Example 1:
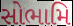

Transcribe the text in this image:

સોભામિ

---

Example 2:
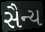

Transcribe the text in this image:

સૈન્ય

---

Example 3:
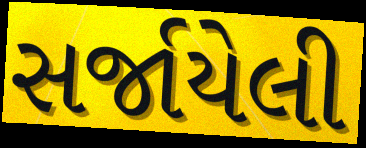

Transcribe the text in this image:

સર્જાયેલી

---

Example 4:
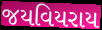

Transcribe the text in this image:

જયવિયરાય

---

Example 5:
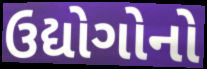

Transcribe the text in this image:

ઉદ્યોગોનો